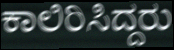
ಕಾಲಿರಿಸಿದ್ದರು